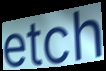
etch